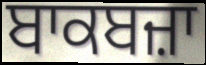
ਬਾਕਬਜ਼ਾ